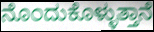
ನೊಂದುಕೊಳ್ಳುತ್ತಾನೆ